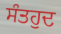
ਸੰਤਹੁਦ